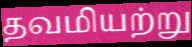
தவமியற்று